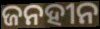
ଜନହୀନ